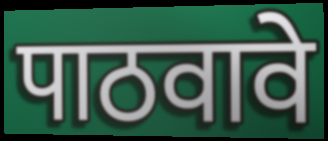
पाठवावे